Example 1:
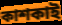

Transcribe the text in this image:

কাশকাই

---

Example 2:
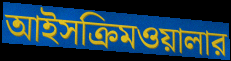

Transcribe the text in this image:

আইসক্রিমওয়ালার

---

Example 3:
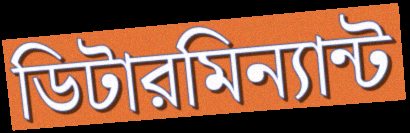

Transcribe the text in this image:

ডিটারমিন্যান্ট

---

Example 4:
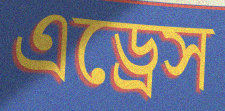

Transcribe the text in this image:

এড্রেস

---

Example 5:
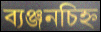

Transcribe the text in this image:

ব্যঞ্জনচিহ্ন